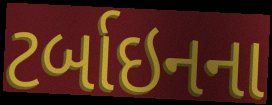
ટર્બાઇનના